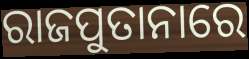
ରାଜପୁତାନାରେ